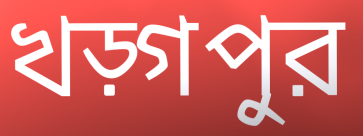
খড়্গপুর